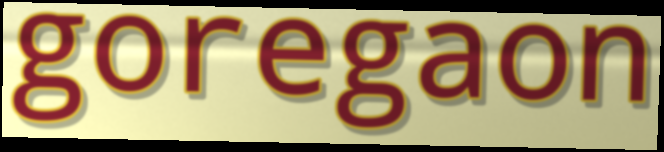
goregaon